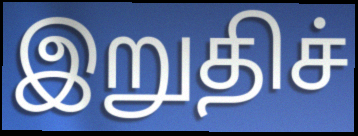
இறுதிச்